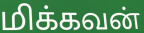
மிக்கவன்